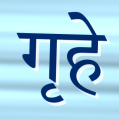
गृहे